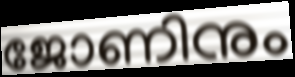
ജോണിനും